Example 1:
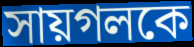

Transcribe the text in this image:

সায়গলকে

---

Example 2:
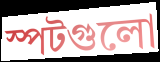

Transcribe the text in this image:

স্পটগুলো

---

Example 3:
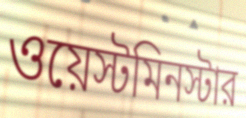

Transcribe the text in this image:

ওয়েস্টমিনস্টার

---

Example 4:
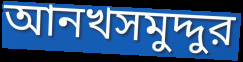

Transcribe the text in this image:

আনখসমুদ্দুর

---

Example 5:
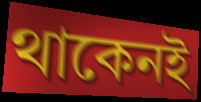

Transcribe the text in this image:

থাকেনই